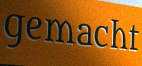
gemacht